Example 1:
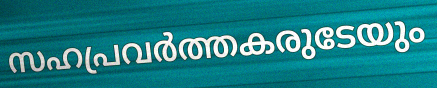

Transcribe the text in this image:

സഹപ്രവർത്തകരുടേയും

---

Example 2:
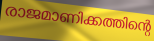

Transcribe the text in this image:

രാജമാണിക്കത്തിന്റെ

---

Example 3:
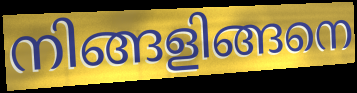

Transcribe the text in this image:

നിങ്ങളിങ്ങനെ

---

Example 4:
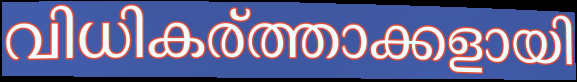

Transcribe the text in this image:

വിധികര്ത്താക്കളായി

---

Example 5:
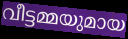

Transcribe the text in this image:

വീട്ടമ്മയുമായ